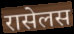
रासेलस